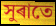
সুৰাতে